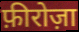
फ़ीरोज़ा